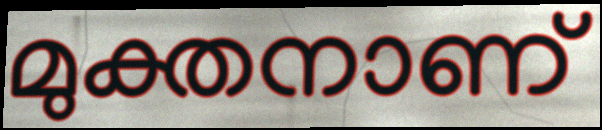
മുക്തനാണ്